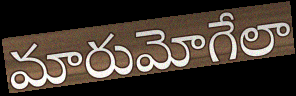
మారుమోగేలా